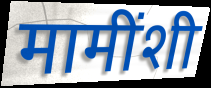
मामींशी